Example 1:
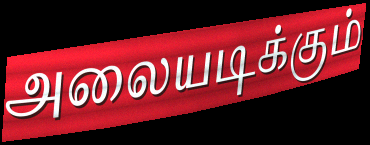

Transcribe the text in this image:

அலையடிக்கும்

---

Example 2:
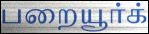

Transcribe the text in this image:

பறையூர்க்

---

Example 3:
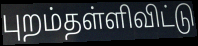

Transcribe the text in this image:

புறம்தள்ளிவிட்டு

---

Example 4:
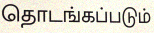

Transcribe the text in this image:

தொடங்கப்படும்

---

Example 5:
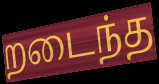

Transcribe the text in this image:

றடைந்த